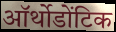
ऑर्थोडोंटिक